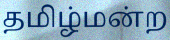
தமிழ்மன்ற